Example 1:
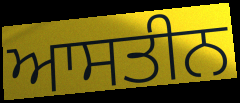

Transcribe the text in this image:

ਆਸਤੀਨ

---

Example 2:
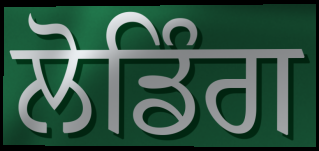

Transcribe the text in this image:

ਲੋਡਿੰਗ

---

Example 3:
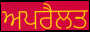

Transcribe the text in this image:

ਅਪਰੈਲਤ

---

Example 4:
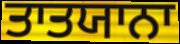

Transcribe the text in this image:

ਤਾਤਯਾਨਾ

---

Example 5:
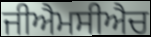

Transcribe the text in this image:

ਜੀਐਮਸੀਐਚ